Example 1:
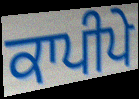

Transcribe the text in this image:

ਕਾਪੀਪੇ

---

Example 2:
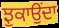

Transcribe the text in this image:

ਝੁਕਾਉਂਦਾ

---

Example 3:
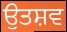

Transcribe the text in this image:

ਉਤਸ਼ਵ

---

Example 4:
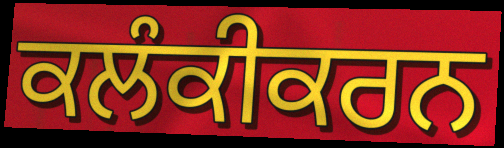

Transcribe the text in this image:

ਕਲੰਕੀਕਰਨ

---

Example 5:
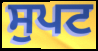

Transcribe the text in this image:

ਸੁਪਟ